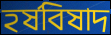
হর্ষবিষাদ